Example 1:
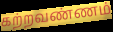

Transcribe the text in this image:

கற்றவண்ணம்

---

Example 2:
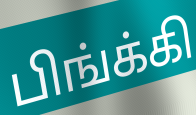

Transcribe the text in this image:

பிங்க்கி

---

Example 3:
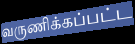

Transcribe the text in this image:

வருணிக்கப்பட்ட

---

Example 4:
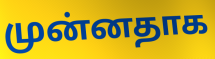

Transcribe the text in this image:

முன்னதாக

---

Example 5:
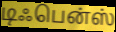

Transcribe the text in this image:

டிஃபென்ஸ்